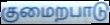
குமைறபாடு